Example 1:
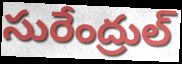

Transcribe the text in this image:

సురేంద్రుల్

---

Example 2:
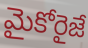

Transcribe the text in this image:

మైకోరైజే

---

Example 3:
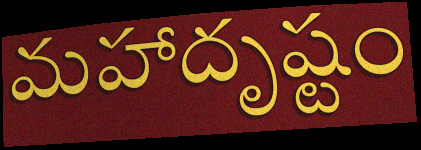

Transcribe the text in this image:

మహాదృష్టం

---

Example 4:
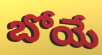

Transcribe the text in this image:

బోయే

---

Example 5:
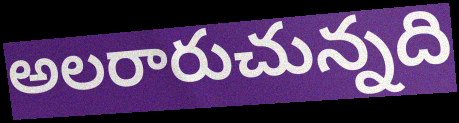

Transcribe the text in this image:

అలరారుచున్నది